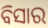
ବିସାର